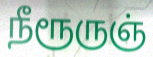
நீரூருஞ்